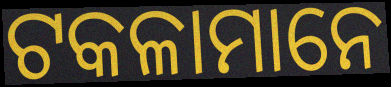
ଟକଳାମାନେ